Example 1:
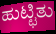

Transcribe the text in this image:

ಹುಟ್ಟಿತು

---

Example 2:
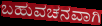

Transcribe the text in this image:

ಬಹುವಚನವಾಗಿ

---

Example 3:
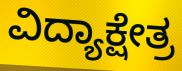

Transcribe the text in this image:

ವಿದ್ಯಾಕ್ಷೇತ್ರ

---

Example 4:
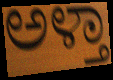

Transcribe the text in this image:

ಅಳ್ತಾ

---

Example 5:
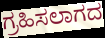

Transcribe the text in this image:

ಗ್ರಹಿಸಲಾಗದ